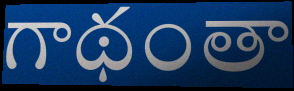
గాథంతా